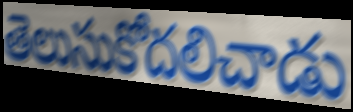
తెలుసుకోదలిచాడు